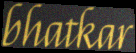
bhatkar